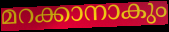
മറക്കാനാകും